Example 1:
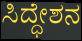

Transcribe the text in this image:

ಸಿದ್ಧೇಶನ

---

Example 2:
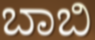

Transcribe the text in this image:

ಬಾಬಿ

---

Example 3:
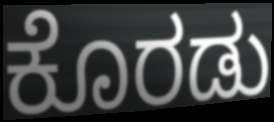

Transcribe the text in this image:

ಕೊರಡು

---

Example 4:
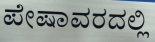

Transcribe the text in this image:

ಪೇಷಾವರದಲ್ಲಿ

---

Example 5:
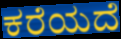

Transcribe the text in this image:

ಕರೆಯದೆ